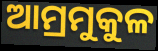
ଆମ୍ରମୁକୁଳ